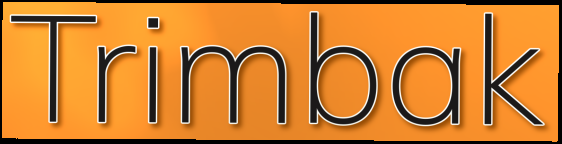
Trimbak